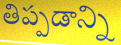
తిప్పడాన్ని